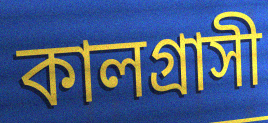
কালগ্রাসী